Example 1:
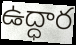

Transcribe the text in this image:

ఉద్ధార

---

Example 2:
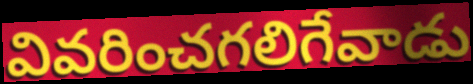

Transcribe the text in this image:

వివరించగలిగేవాడు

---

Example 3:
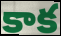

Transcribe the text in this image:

కాక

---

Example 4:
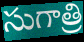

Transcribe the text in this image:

సుగాత్రి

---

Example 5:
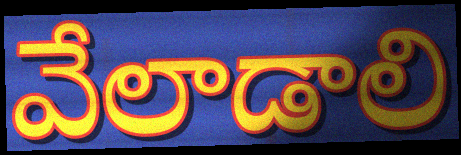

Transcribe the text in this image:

వేలాడాలి